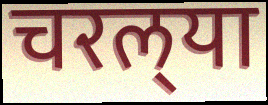
चरल्या